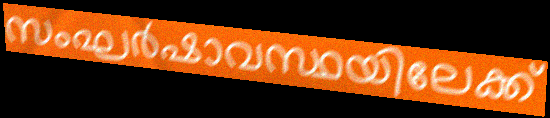
സംഘർഷാവസ്ഥയിലേക്ക്